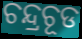
ଚନ୍ଦ୍ରଚୂଡ